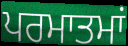
ਪਰਮਾਤਮਾਂ